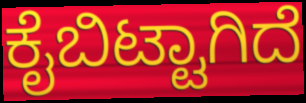
ಕೈಬಿಟ್ಟಾಗಿದೆ